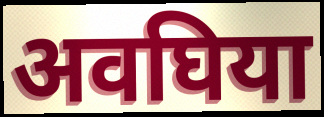
अवघिया